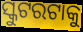
ସ୍କୁଟରଟାକୁ